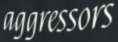
aggressors